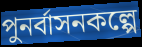
পুনর্বাসনকল্পে